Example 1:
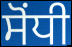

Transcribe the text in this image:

ਸੋਂਧੀ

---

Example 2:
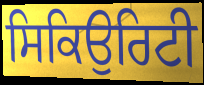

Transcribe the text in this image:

ਸਿਕਿਉਰਿਟੀ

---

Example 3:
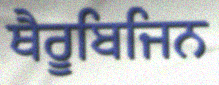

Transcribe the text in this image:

ਥੈਰੂਬਿਜਿਨ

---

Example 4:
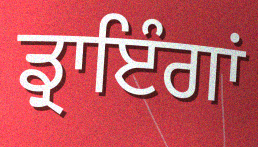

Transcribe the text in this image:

ਡ੍ਰਾਇੰਗਾਂ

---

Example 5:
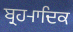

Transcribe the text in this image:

ਬ੍ਰਹ੍ਮਾਦਿਕ